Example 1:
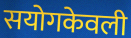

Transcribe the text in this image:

सयोगकेवली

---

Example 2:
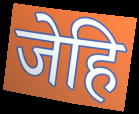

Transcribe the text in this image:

जेहि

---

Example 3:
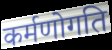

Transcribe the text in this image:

कर्मणोगति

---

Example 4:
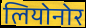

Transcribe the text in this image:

लियोनोर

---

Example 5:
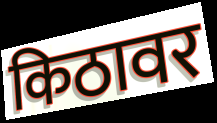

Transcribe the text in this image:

किठावर